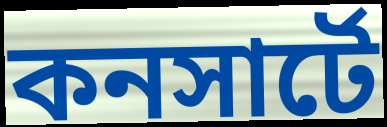
কনসার্টে